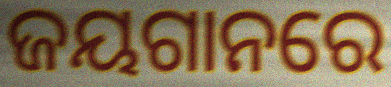
ଜୟଗାନରେ